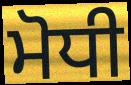
ਮੋਧੀ